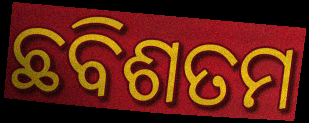
ଛବିଶତମ